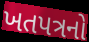
ખતપત્રનો